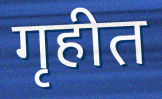
गृहीत